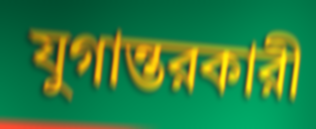
যুগান্তরকারী